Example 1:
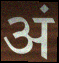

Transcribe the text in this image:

अं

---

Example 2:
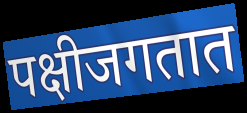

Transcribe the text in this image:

पक्षीजगतात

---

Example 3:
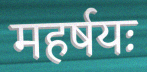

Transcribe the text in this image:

महर्षयः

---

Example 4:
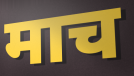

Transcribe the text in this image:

माच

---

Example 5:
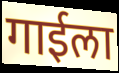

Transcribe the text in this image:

गाईला